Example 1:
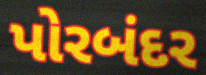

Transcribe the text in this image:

પોરબંદર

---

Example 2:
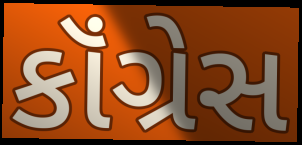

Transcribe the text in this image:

કૉંગ્રેસ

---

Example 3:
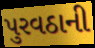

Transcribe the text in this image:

પુરવઠાની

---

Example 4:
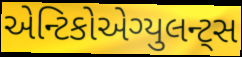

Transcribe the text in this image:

એન્ટિકોએગ્યુલન્ટ્સ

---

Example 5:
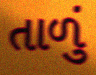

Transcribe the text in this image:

તાળું